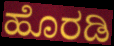
ಹೊರಡಿ